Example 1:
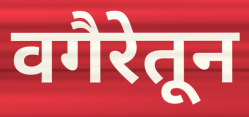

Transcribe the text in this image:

वगैरेतून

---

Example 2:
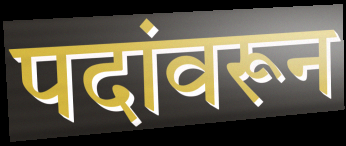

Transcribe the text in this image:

पदांवरून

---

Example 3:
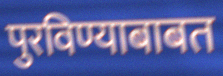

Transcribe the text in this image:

पुरविण्याबाबत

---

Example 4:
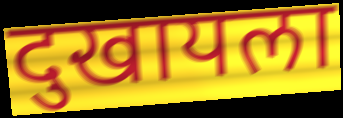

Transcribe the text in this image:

दुखायला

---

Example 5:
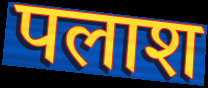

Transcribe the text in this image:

पलाश